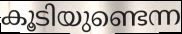
കൂടിയുണ്ടെന്ന